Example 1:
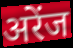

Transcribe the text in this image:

अरेंज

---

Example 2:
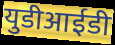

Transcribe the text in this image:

युडीआईडी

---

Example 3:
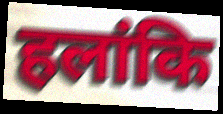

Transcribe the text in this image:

हलांकि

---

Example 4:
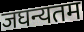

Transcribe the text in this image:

जघन्यतम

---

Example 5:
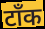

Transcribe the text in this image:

टॉंक